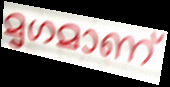
മൃഗമാണ്